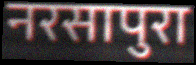
नरसापुरा